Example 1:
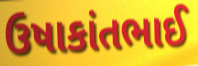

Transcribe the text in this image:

ઉષાકાંતભાઈ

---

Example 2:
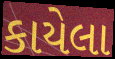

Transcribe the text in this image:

કાયેલા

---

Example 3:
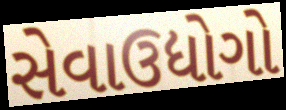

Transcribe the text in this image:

સેવાઉદ્યોગો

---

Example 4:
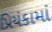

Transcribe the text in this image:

પ્રિયંકામાં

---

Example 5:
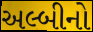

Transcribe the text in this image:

અલ્બીનો